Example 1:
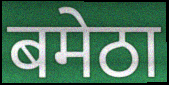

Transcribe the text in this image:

बमेठा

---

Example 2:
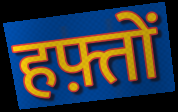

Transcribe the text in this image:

हफ़्तों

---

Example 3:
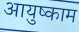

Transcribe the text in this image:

आयुष्काम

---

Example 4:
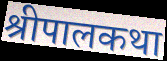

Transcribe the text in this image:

श्रीपालकथा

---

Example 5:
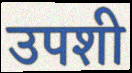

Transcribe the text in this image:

उपशी